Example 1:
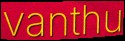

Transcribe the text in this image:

vanthu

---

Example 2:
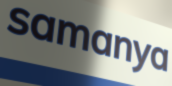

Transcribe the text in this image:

samanya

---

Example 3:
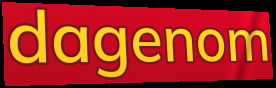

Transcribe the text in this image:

dagenom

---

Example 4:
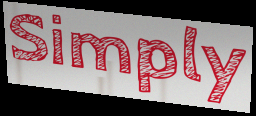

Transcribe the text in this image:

Simply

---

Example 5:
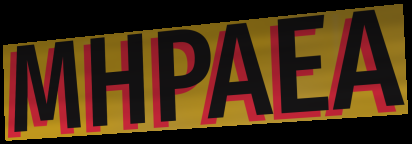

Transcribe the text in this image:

MHPAEA